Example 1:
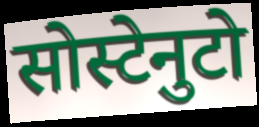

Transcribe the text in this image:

सोस्टेनुटो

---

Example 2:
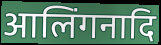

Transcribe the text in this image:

आलिंगनादि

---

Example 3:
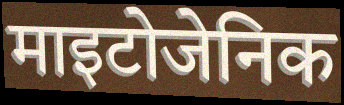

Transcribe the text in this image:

माइटोजेनिक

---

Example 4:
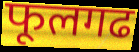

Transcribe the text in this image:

फूलगढ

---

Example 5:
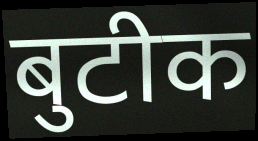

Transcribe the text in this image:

बुटीक